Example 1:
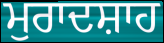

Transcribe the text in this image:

ਮੁਰਾਦਸ਼ਾਹ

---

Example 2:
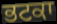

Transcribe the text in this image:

ਭਟਕਾ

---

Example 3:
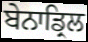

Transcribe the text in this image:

ਬੇਨਾਡ੍ਰਿਲ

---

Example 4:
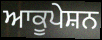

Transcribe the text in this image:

ਆਕੂਪੇਸ਼ਨ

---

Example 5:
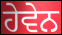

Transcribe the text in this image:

ਹੇਵੇਨ